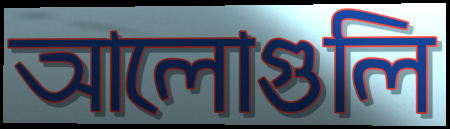
আলোগুলি